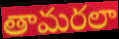
తామరలా